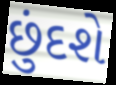
છુંદશે